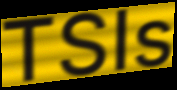
TSIs